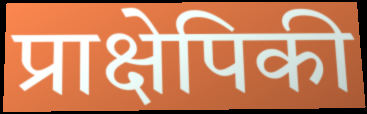
प्राक्षेपिकी